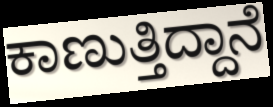
ಕಾಣುತ್ತಿದ್ದಾನೆ